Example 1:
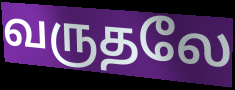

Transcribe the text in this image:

வருதலே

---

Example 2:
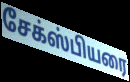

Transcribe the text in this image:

சேக்ஸ்பியரை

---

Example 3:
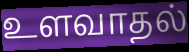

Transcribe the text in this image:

உளவாதல்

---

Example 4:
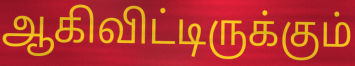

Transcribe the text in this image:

ஆகிவிட்டிருக்கும்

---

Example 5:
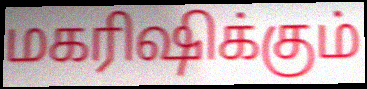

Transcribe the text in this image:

மகரிஷிக்கும்